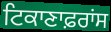
ਟਿਕਾਣਾਫ਼ਰਾਂਸ